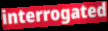
interrogated